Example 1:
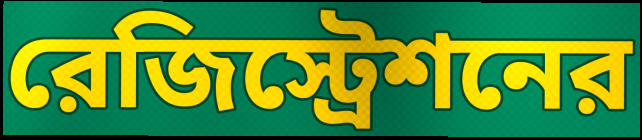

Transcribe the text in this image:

রেজিস্ট্রেশনের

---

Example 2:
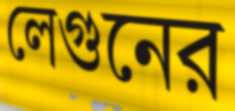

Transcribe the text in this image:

লেগুনের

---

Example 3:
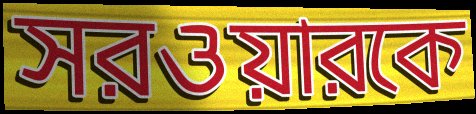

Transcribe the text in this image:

সরওয়ারকে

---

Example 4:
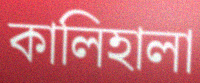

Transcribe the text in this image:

কালিহালা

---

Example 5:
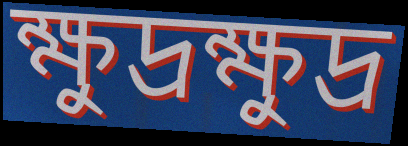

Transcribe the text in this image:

ক্ষুদ্রক্ষুদ্র